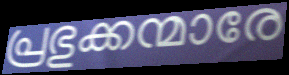
പ്രഭുക്കന്മാരേ